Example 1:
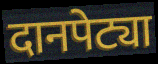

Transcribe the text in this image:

दानपेट्या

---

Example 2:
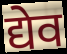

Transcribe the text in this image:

द्येव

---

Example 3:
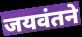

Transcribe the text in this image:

जयवंतने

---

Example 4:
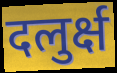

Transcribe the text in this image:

दलुर्क्ष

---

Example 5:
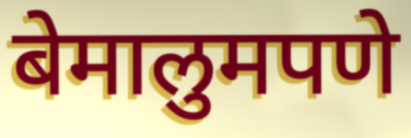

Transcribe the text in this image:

बेमालुमपणे